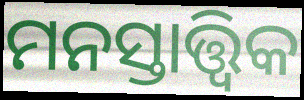
ମନସ୍ତାତ୍ତ୍ଵିକ